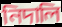
নিদালি